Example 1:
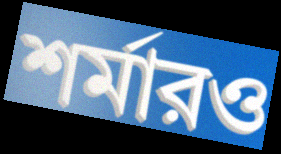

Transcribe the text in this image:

শর্মারও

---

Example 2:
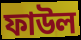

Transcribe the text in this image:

ফাউল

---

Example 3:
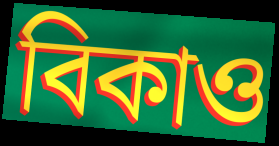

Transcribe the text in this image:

বিকাও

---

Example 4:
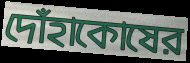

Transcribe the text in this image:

দোঁহাকোষের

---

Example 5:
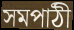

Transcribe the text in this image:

সমপাঠী